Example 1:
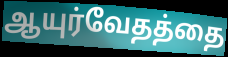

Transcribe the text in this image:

ஆயுர்வேதத்தை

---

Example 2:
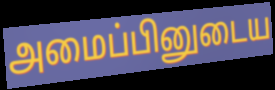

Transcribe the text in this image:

அமைப்பினுடைய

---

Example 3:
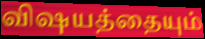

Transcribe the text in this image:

விஷயத்தையும்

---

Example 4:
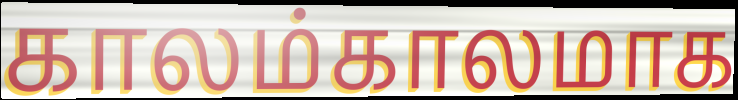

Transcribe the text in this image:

காலம்காலமாக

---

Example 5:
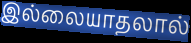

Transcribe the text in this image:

இல்லையாதலால்